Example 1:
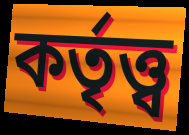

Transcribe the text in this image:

কর্তৃত্ত্ব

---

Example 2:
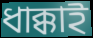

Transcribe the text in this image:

ধাক্কাই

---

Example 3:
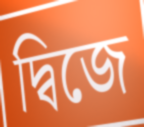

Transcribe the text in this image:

দ্বিজে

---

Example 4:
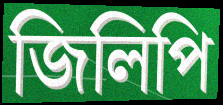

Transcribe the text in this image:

জিলিপি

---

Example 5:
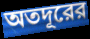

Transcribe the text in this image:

অতদূরের